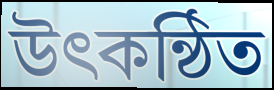
উৎকন্ঠিত